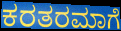
ಕರತರಮಾಗೆ